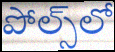
పోల్స్‌లో